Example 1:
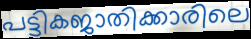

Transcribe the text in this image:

പട്ടികജാതിക്കാരിലെ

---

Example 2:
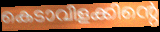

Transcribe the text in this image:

കെടാവിളക്കിന്റെ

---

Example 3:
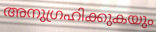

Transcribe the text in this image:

അനുഗ്രഹിക്കുകയും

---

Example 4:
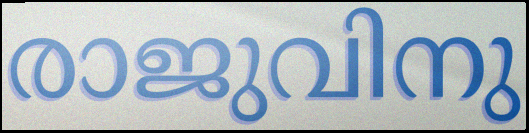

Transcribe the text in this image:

രാജുവിനു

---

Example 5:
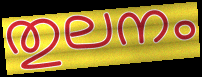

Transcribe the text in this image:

തുലനം